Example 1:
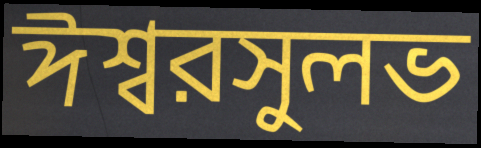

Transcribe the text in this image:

ঈশ্বরসুলভ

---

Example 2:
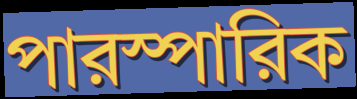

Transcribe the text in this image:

পারস্পারিক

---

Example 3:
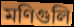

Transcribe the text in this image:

মণিগুলি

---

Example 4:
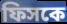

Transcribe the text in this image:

ফিসকে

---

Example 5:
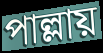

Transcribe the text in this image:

পাল্লায়